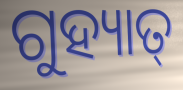
ଗୁହ୍ୟାତ୍